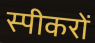
स्पीकरों